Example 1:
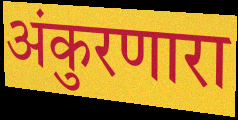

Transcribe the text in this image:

अंकुरणारा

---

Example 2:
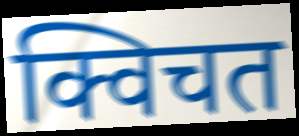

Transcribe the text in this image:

क्विचत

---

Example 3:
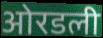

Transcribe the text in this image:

ओरडली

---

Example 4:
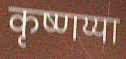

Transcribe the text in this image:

कृष्णय्या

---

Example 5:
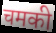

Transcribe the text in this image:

चमकी